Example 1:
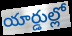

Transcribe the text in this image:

యార్డుల్లో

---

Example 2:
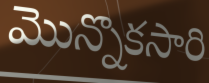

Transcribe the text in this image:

మొన్నొకసారి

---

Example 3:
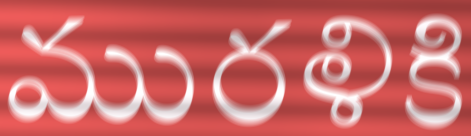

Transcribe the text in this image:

మురళికి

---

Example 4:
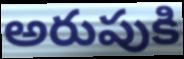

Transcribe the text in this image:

అరుపుకి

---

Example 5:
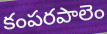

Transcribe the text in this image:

కంపరపాలెం